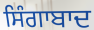
ਸਿੰਗਾਬਾਦ